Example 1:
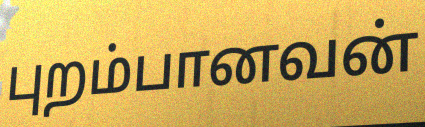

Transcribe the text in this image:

புறம்பானவன்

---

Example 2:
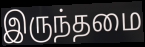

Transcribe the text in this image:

இருந்தமை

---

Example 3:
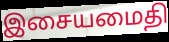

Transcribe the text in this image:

இசையமைதி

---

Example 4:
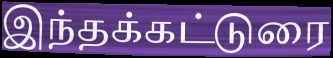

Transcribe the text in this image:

இந்தக்கட்டுரை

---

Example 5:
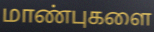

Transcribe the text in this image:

மாண்புகளை